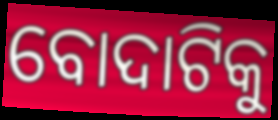
ବୋଦାଟିକୁ